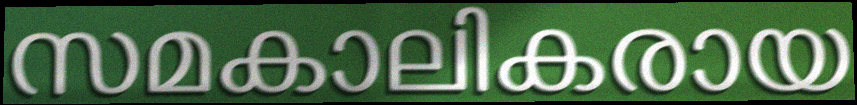
സമകാലികരായ